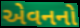
એવનનો